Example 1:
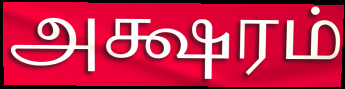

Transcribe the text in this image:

அக்ஷரம்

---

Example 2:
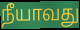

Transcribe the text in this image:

நீயாவது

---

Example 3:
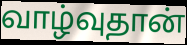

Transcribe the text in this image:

வாழ்வுதான்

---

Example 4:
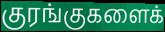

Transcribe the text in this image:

குரங்குகளைக்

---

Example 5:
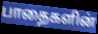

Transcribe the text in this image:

பாதைகளின்